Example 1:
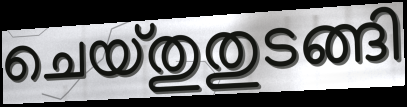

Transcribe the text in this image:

ചെയ്തുതുടങ്ങി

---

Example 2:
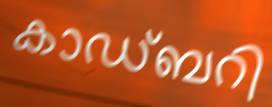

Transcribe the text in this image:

കാഡ്ബറി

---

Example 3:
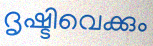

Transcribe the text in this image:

ദൃഷ്ടിവെക്കും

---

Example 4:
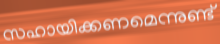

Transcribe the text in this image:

സഹായിക്കണമെന്നുണ്ട്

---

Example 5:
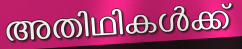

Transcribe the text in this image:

അതിഥികൾക്ക്